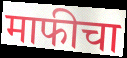
माफीचा